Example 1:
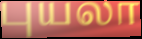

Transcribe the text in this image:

புயலா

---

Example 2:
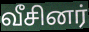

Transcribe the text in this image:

வீசினர்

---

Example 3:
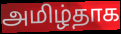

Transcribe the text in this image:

அமிழ்தாக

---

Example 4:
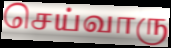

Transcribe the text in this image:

செய்வாரு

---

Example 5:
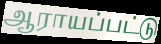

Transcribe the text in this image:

ஆராயப்பட்டு